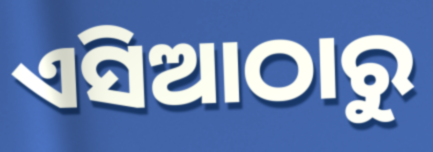
ଏସିଆଠାରୁ